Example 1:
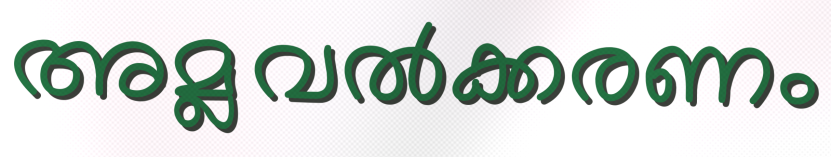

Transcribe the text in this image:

അമ്ലവൽക്കരണം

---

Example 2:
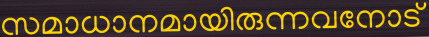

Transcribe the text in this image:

സമാധാനമായിരുന്നവനോട്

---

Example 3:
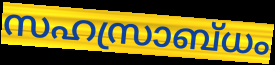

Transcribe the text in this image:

സഹസ്രാബ്ധം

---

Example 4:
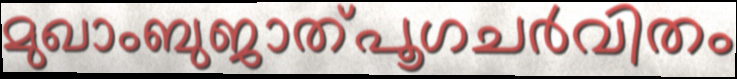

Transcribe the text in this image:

മുഖാംബുജാത്പൂഗചർവിതം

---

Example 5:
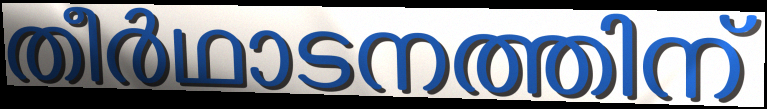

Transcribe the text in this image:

തീർഥാടനത്തിന്